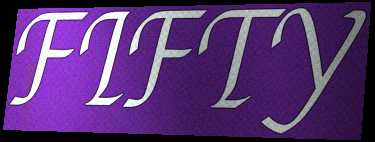
FIFTY